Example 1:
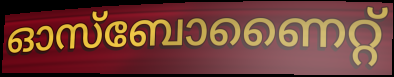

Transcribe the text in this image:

ഓസ്ബോണൈറ്റ്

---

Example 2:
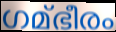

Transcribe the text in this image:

ഗമ്ഭീരം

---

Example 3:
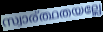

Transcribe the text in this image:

സ്വാര്ത്ഥതയല്ലേ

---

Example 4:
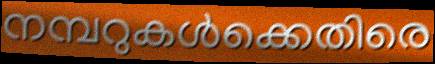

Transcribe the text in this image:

നമ്പറുകൾക്കെതിരെ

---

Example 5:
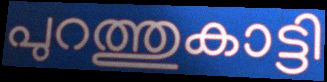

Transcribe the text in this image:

പുറത്തുകാട്ടി